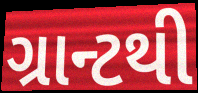
ગ્રાન્ટથી